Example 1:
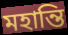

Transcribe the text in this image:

মহান্তি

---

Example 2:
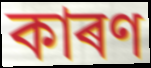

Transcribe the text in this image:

কাৰণ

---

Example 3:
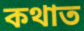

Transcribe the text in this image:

কথাত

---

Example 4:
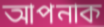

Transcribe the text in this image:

আপনাক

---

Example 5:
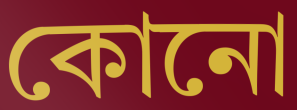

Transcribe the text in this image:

কোনো